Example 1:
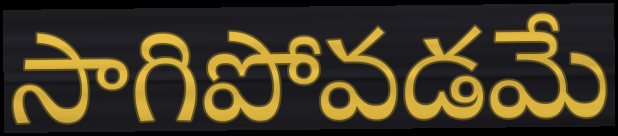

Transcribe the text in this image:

సాగిపోవడమే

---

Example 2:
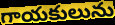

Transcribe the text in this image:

గాయకులును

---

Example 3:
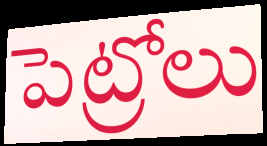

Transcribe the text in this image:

పెట్రోలు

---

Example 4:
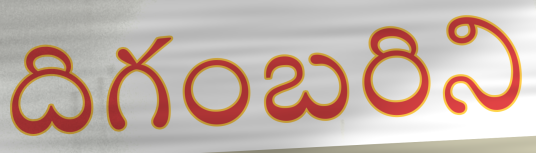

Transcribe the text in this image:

దిగంబరిని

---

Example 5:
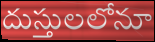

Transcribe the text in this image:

దుస్తులలోనూ